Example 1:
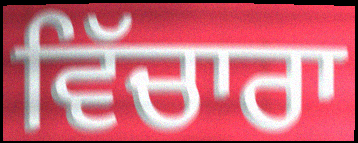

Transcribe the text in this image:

ਵਿੱਚਾਰਾ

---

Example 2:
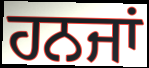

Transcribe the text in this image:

ਹਨਜਾਂ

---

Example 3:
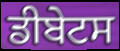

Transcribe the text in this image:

ਡੀਬੇਟਸ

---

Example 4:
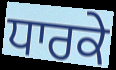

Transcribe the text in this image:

ਧਾਰਕੇ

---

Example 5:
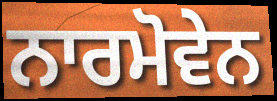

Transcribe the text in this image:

ਨਾਰਮੋਵੇਨ